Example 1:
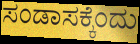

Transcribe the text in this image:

ಸಂಡಾಸಕ್ಕೆಂದು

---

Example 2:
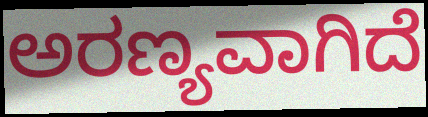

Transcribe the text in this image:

ಅರಣ್ಯವಾಗಿದೆ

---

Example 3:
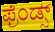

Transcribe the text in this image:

ಫ್ರೆಂಡ್ಸ್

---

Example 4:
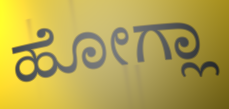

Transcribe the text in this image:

ಹೋಗ್ಲಾ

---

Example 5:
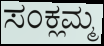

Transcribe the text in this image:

ಸಂಕ್ಲಮ್ಮ